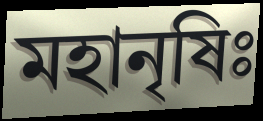
মহানৃষিঃ